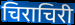
चिराचिरी